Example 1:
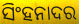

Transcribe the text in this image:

ସିଂହନାଦର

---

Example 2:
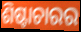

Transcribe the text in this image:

ଶିଷ୍ଟାଚାରର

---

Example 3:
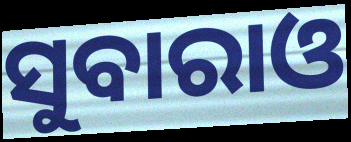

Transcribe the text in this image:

ସୁବାରାଓ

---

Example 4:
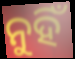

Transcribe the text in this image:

ନୁହିଁ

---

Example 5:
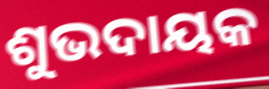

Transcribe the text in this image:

ଶୁଭଦାୟକ